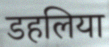
डहलिया